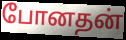
போனதன்